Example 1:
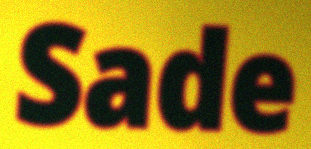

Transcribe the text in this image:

Sade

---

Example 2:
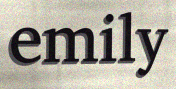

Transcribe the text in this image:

emily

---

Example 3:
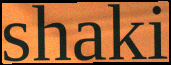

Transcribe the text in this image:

shaki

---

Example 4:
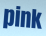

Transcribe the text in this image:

pink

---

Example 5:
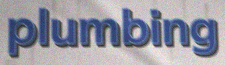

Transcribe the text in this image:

plumbing